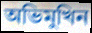
অভিমুখিন